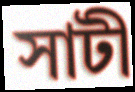
সাটী